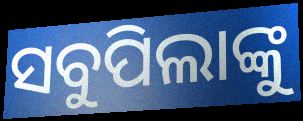
ସବୁପିଲାଙ୍କୁ